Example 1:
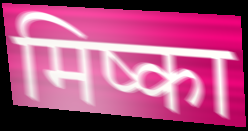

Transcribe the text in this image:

मिष्का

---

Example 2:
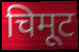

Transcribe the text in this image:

चिमूट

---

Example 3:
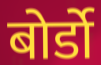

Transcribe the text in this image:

बोर्डो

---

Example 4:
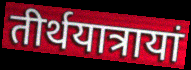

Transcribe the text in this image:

तीर्थयात्रायां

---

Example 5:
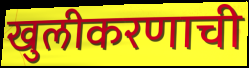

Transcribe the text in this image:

खुलीकरणाची